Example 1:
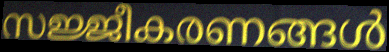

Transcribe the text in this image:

സജ്ജീകരണങ്ങൾ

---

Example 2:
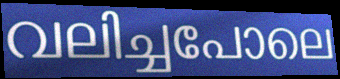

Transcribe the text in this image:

വലിച്ചപോലെ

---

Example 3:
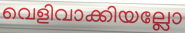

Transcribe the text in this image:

വെളിവാക്കിയല്ലോ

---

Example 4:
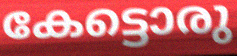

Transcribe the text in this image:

കേട്ടൊരു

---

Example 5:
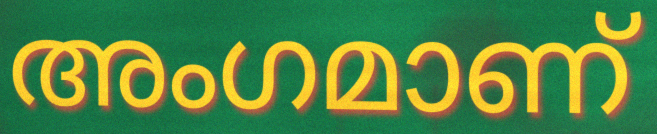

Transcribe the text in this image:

അംഗമാണ്